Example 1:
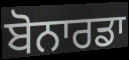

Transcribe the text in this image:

ਬੋਨਾਰਡਾ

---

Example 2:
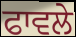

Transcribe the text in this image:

ਫਾਵਲੇ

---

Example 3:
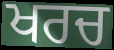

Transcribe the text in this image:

ਖਰਚ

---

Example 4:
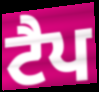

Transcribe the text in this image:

ਟੈਪ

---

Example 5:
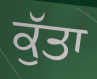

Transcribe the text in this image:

ਕੁੱਤਾ